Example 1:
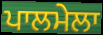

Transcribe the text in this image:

ਪਾਲਮੇਲਾ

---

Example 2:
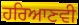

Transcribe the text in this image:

ਹਰਿਆਣਵੀ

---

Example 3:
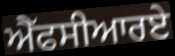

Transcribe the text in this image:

ਐੱਫਸੀਆਰਏ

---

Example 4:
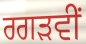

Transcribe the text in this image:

ਰਗੜਵੀਂ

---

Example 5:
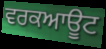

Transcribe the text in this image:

ਵਰਕਆਊਟ